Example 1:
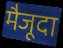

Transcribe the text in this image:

मैजूदा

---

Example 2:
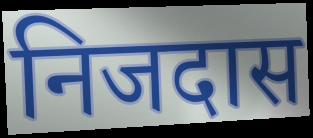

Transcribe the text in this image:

निजदास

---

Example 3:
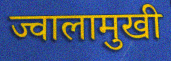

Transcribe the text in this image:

ज्वालामुखी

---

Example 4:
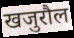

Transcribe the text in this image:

खजुरौल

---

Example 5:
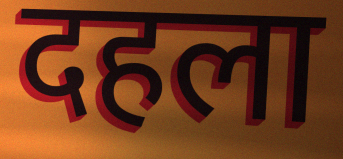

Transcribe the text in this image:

दहला